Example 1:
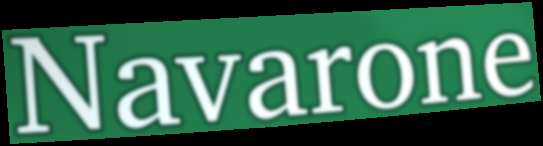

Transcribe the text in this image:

Navarone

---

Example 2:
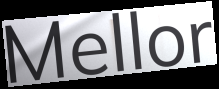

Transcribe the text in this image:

Mellor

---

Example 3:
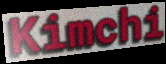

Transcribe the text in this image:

Kimchi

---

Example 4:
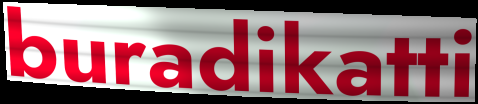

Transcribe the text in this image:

buradikatti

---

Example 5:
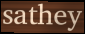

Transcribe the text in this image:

sathey